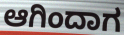
ಆಗಿಂದಾಗ